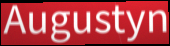
Augustyn